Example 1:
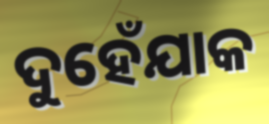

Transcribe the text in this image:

ଦୁହେଁଯାକ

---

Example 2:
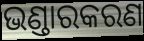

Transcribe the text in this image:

ଭଣ୍ଡାରକରଣ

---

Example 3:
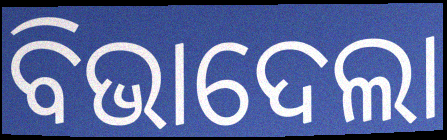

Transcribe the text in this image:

ବିଭାଦେଲା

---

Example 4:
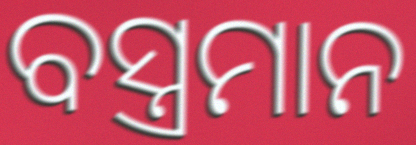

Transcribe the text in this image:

ବସ୍ତ୍ରମାନ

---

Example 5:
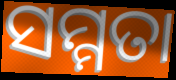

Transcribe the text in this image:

ସମ୍ମତା